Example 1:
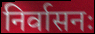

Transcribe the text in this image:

निर्वासनः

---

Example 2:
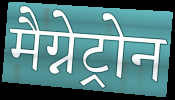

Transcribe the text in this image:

मैग्नेट्रोन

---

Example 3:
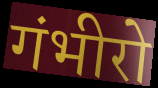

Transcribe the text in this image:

गंभीरो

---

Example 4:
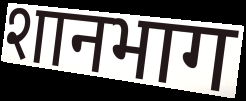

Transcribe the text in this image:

शानभाग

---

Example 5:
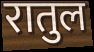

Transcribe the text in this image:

रातुल